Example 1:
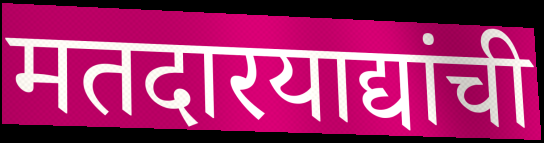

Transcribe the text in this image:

मतदारयाद्यांची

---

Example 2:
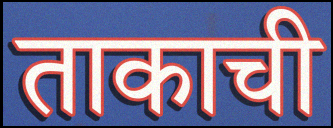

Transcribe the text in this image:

ताकाची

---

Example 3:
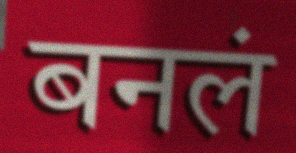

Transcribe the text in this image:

बनलं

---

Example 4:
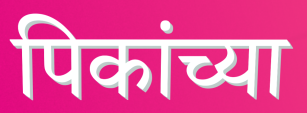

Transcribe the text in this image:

पिकांच्या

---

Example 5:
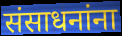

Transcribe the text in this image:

संसाधनांना